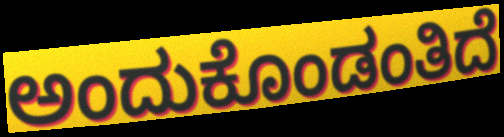
ಅಂದುಕೊಂಡಂತಿದೆ